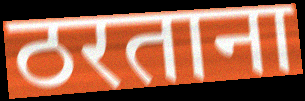
ठरताना